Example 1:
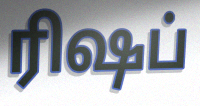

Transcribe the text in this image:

ரிஷப்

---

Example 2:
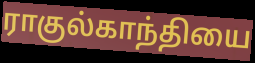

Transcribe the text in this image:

ராகுல்காந்தியை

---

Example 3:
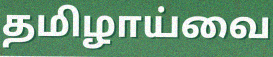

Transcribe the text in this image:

தமிழாய்வை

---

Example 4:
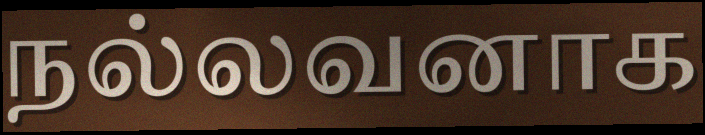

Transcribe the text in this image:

நல்லவனாக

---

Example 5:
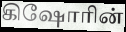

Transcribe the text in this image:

கிஷோரின்